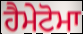
ਹੈਮੇਟੋਮਾ